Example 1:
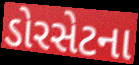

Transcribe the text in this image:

ડોરસેટના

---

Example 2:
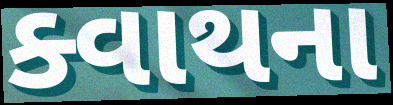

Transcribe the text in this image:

ક્વાથના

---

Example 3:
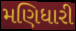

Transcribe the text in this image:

મણિધારી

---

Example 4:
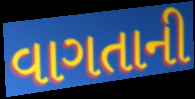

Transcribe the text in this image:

વાગતાની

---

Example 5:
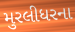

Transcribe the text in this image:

મુરલીધરના